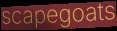
scapegoats